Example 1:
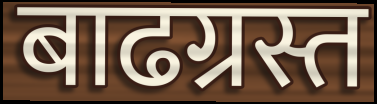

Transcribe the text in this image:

बाढग्रस्त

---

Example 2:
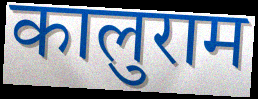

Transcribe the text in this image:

कालुराम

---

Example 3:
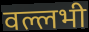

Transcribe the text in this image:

वल्लभी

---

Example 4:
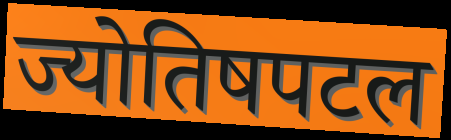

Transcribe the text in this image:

ज्योतिषपटल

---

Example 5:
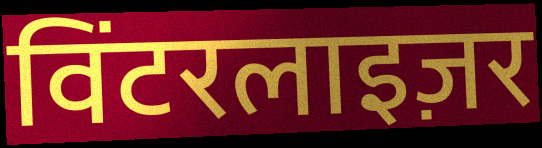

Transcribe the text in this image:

विंटरलाइज़र